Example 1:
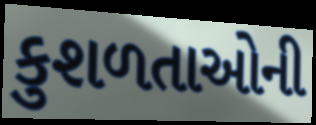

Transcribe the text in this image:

કુશળતાઓની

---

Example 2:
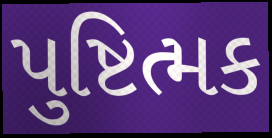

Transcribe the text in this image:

પુષ્ટિત્મક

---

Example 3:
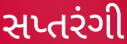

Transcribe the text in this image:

સપ્તરંગી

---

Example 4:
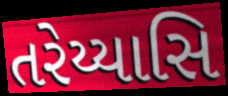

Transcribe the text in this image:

તરેય્યાસિ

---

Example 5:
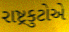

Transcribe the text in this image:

રાષ્ટ્રકુટોએ